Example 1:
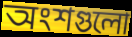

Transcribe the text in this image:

অংশগুলো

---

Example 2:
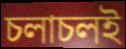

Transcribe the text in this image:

চলাচলই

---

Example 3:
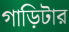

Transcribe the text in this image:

গাড়িটার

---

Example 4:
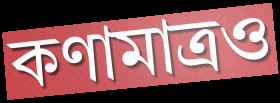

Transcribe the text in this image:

কণামাত্রও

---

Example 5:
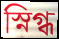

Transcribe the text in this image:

স্নিগ্ধ